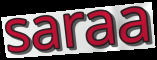
saraa